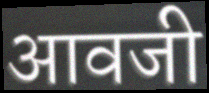
आवजी